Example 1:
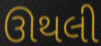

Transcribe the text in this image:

ઊથલી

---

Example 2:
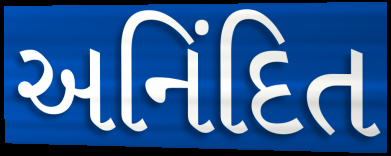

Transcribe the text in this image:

અનિંદિત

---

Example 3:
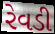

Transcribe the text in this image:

રેવડી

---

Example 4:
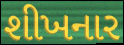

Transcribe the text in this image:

શીખનાર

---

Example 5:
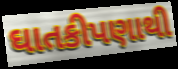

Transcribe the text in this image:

ઘાતકીપણાથી